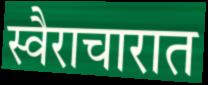
स्वैराचारात